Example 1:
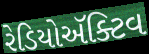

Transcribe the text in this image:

રેડિયોઍક્ટિવ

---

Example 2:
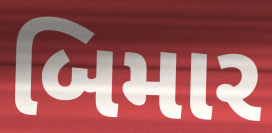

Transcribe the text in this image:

બિમાર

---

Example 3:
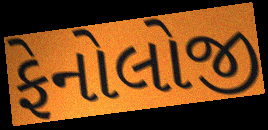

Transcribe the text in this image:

ફેનોલોજી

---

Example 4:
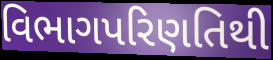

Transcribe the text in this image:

વિભાગપરિણતિથી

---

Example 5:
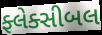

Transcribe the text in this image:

ફ્લેક્સીબલ